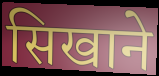
सिखाने